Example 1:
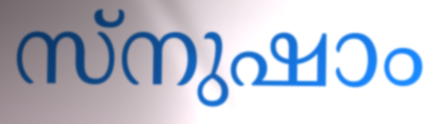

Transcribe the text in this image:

സ്നുഷാം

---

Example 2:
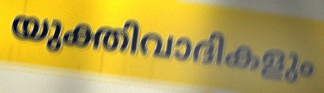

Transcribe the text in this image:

യുക്തിവാദികളും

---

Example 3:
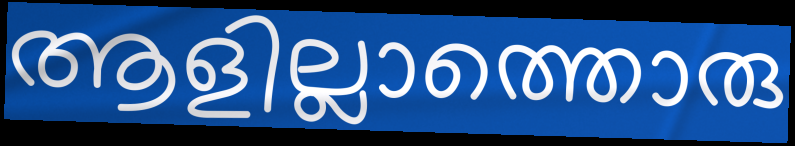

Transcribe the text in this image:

ആളില്ലാത്തൊരു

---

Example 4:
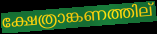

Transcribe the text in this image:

ക്ഷേത്രാങ്കണത്തില്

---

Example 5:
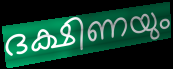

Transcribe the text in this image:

ദക്ഷിണയും